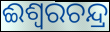
ଈଶ୍ୱରଚନ୍ଦ୍ର